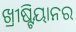
ଖ୍ରୀଷ୍ଟିୟାନର